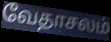
வேதாசலம்